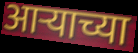
आऱ्याच्या